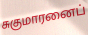
சுகுமாரனைப்